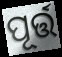
ପୂର୍ତ୍ତ